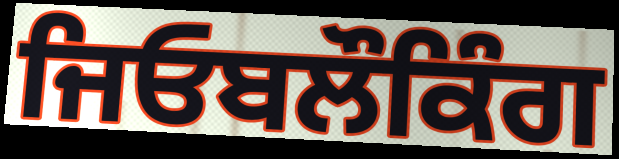
ਜਿਓਬਲੌਕਿੰਗ